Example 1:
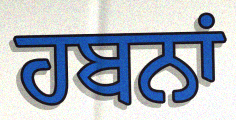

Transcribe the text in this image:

ਹਬਨਾਂ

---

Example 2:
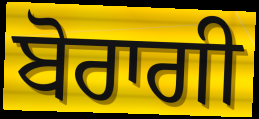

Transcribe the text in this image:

ਬੋਰਾਗੀ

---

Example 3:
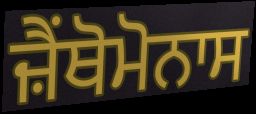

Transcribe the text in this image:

ਜ਼ੈਂਥੋਮੋਨਾਸ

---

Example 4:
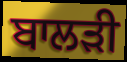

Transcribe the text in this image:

ਬਾਲੜੀ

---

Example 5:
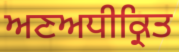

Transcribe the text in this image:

ਅਣਅਧੀਕ੍ਰਿਤ